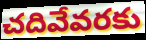
చదివేవరకు